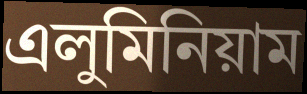
এলুমিনিয়াম